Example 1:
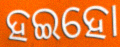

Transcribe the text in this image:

ହଇହୋ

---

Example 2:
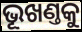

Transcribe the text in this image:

ଭୂଖଣ୍ତକୁ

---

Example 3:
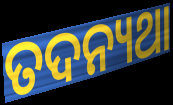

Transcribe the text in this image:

ତଦନ୍ୟଥା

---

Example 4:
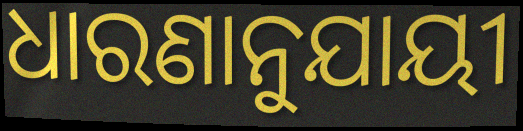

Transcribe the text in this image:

ଧାରଣାନୁଯାୟୀ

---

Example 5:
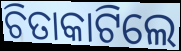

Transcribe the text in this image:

ଚିତାକାଟିଲେ